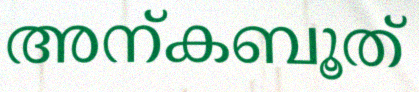
അന്കബൂത്